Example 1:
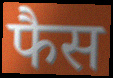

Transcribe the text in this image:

फैस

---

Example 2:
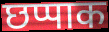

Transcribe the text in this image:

छप्पाक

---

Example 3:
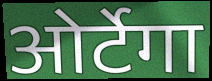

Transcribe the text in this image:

ओर्टेगा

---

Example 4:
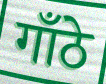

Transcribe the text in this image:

गाँठे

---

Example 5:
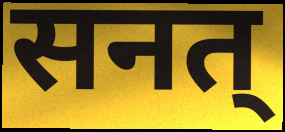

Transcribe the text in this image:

सनत्